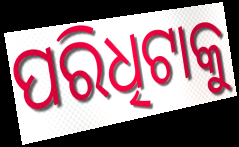
ପରିଧିଟାକୁ